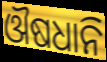
ଔଷଧାନି